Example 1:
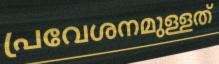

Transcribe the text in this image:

പ്രവേശനമുള്ളത്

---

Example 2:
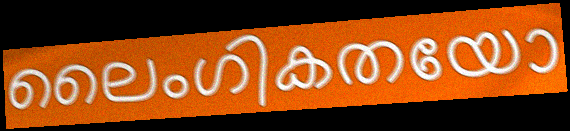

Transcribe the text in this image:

ലൈംഗികതയോ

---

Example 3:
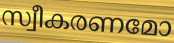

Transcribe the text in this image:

സ്വീകരണമോ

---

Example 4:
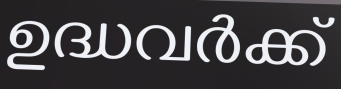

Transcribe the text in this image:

ഉദ്ധവർക്ക്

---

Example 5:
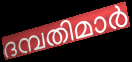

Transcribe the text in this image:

ദമ്പതിമാർ